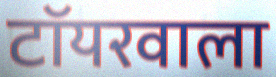
टॉयरवाला